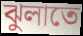
ঝুলাতে